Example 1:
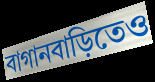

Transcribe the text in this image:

বাগানবাড়িতেও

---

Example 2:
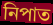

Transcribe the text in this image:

নিপাত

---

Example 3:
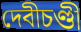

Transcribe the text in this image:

দেবীচণ্ডী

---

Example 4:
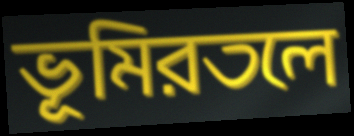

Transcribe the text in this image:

ভূমিরতলে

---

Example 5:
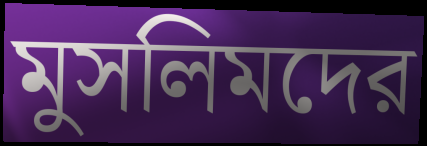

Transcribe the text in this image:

মুসলিমদের